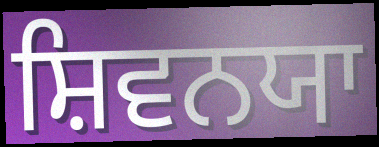
ਸ਼ਿਵਨਯਾ